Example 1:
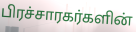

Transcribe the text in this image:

பிரச்சாரகர்களின்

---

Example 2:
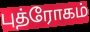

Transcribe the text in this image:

புத்ரோகம்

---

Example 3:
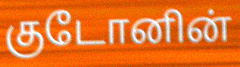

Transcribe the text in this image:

குடோனின்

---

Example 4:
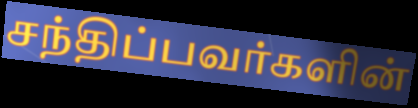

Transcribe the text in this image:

சந்திப்பவர்களின்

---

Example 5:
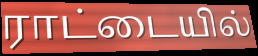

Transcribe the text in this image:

ராட்டையில்